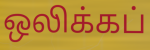
ஒலிக்கப்